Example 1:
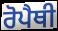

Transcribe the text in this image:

ਰੋਪੈਥੀ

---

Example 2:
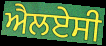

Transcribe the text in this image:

ਐਲਏਸੀ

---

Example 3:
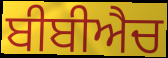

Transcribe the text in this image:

ਬੀਬੀਐਚ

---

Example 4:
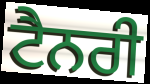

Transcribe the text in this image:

ਟੈਨਰੀ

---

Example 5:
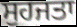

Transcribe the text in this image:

ਸੁਹਜਤਾ